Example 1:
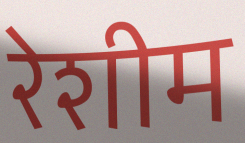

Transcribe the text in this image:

रेशीम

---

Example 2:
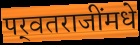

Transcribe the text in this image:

पर्वतराजींमधे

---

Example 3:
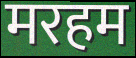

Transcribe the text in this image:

मरहम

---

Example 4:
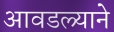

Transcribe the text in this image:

आवडल्याने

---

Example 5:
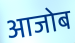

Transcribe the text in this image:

आजोब